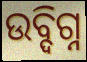
ଉବ୍ଦିଗ୍ନ